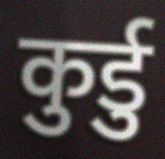
कुर्डु